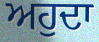
ਅਹੁਦਾ